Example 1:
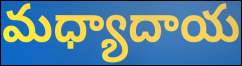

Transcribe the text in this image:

మధ్యాదాయ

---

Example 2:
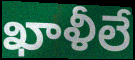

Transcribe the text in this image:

ఖాళీలే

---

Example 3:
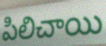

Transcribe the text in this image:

పిలిచాయి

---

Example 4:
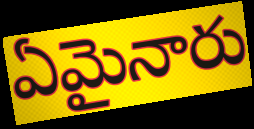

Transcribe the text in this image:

ఏమైనారు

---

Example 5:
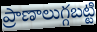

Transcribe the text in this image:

ప్రాణాలుగ్గబట్టి